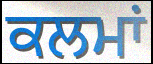
ਕਲਮਾਂ